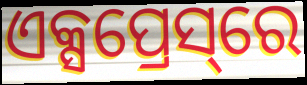
ଏକ୍ସପ୍ରେସ୍‌ରେ